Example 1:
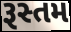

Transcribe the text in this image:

રૂસ્તમ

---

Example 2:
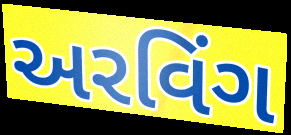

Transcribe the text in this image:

અરવિંગ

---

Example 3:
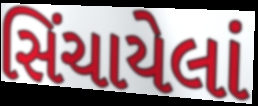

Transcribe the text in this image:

સિંચાયેલાં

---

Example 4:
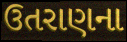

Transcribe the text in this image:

ઉતરાણના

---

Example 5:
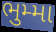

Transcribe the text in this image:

ભુમ્મા